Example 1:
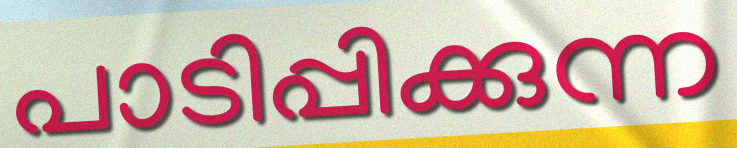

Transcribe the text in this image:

പാടിപ്പിക്കുന്ന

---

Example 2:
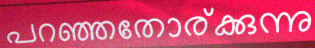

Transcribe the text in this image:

പറഞ്ഞതോര്ക്കുന്നു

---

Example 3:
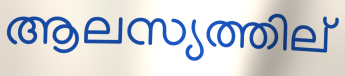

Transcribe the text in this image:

ആലസ്യത്തില്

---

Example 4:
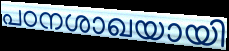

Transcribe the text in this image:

പഠനശാഖയായി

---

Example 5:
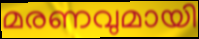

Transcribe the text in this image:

മരണവുമായി